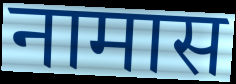
नामास